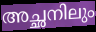
അച്ഛനിലും